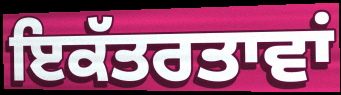
ਇਕੱਤਰਤਾਵਾਂ